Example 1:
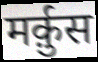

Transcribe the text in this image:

मर्क़ुस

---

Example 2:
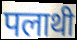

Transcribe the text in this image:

पलाथी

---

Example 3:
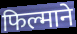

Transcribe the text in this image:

फिल्‍माने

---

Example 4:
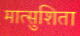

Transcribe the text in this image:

मात्सुशिता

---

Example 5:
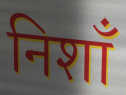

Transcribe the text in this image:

निशाँ